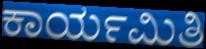
ಕಾರ್ಯಮಿತಿ